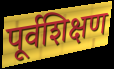
पूर्वशिक्षण